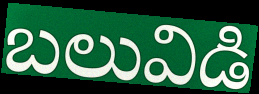
బలువిడి